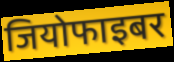
जियोफाइबर